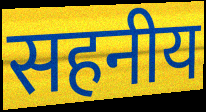
सहनीय